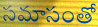
సమాసంతో